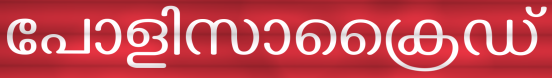
പോളിസാക്രൈഡ്